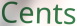
Cents